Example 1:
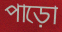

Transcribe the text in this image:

পাড়ো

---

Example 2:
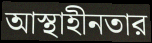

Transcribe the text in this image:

আস্থাহীনতার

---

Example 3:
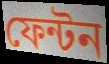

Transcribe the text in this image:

ফেন্টন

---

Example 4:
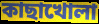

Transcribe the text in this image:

কাছাখোলা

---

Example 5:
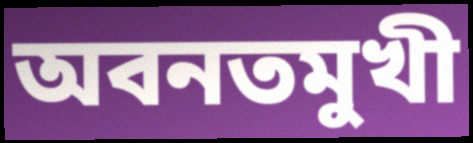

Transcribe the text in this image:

অবনতমুখী